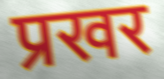
प्रखर